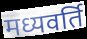
मध्यवर्ति